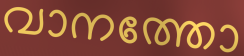
വാനത്തോ